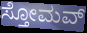
ಸ್ತೋಮವ್